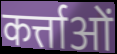
कर्त्ताओं